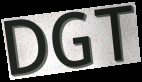
DGT